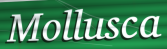
Mollusca